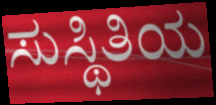
ಸುಸ್ಥಿತಿಯ